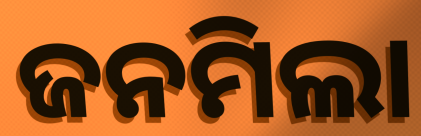
ଜନମିଲା